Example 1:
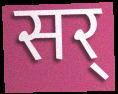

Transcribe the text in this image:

सर्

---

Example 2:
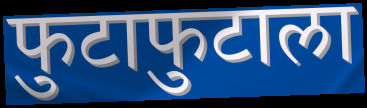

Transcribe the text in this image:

फुटाफुटाला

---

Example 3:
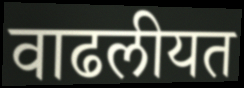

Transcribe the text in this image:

वाढलीयत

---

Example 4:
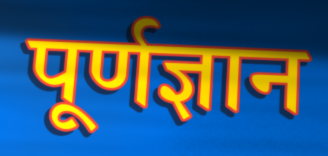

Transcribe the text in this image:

पूर्णज्ञान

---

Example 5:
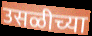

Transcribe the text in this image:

उसळीच्या